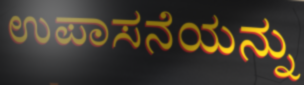
ಉಪಾಸನೆಯನ್ನು